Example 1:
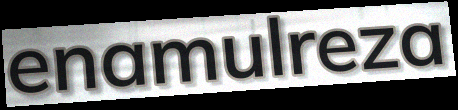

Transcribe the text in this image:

enamulreza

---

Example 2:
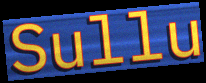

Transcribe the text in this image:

Sullu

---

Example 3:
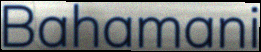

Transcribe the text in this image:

Bahamani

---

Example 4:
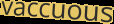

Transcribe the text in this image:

vaccuous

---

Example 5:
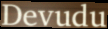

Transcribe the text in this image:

Devudu